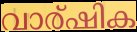
വാര്ഷിക